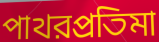
পাথরপ্রতিমা